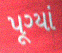
પૂગ્યાં